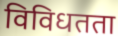
विविधतता